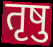
तृषु